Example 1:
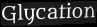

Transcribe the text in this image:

Glycation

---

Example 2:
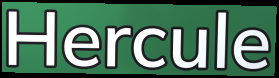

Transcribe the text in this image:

Hercule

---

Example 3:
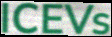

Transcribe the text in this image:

ICEVs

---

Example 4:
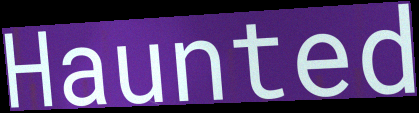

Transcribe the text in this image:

Haunted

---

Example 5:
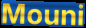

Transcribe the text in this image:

Mouni